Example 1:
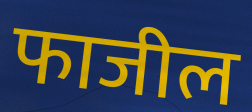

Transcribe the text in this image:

फाजील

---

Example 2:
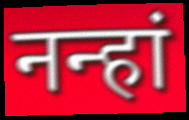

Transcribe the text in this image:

नन्हां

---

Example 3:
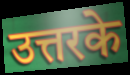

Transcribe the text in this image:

उत्तरके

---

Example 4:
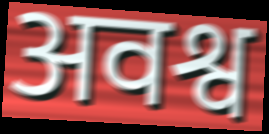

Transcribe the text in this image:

अवश्व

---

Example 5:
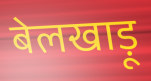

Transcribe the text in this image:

बेलखाड़ू